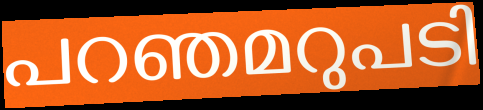
പറഞമറുപടി